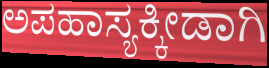
ಅಪಹಾಸ್ಯಕ್ಕೀಡಾಗಿ